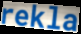
rekla